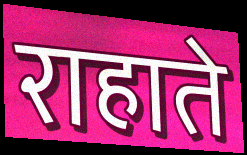
राहाते